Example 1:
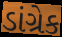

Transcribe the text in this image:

ડાંગ્રેક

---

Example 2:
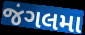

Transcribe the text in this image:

જંગલમા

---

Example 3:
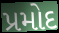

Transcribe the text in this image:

પ્રમોદ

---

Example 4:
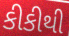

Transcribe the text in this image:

કીકીથી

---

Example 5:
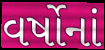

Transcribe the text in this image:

વર્ષોનાં